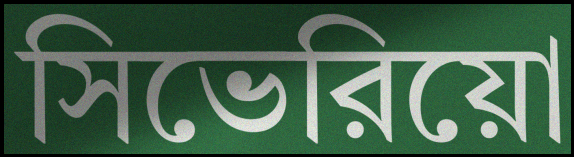
সিভেরিয়ো